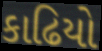
કાઢિયો